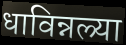
धाविन्नल्या